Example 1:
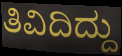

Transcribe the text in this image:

ತಿವಿದಿದ್ದು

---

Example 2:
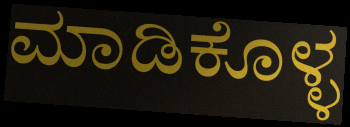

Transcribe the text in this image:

ಮಾಡಿಕೊಳ್ಳ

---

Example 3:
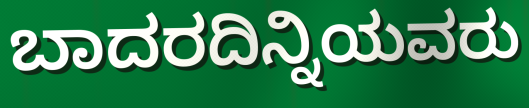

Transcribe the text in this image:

ಬಾದರದಿನ್ನಿಯವರು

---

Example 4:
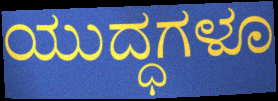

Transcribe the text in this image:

ಯುದ್ಧಗಳೂ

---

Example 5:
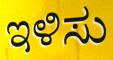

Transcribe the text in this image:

ಇಳಿಸು